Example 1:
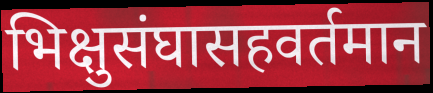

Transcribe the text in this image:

भिक्षुसंघासहवर्तमान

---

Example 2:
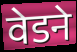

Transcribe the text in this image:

वेडने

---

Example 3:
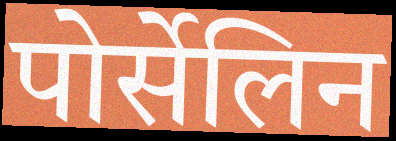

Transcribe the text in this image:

पोर्सेलिन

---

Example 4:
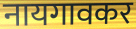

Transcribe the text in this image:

नायगावकर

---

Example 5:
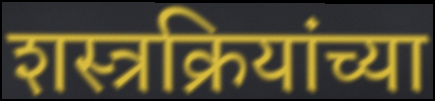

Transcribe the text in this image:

शस्त्रक्रियांच्या